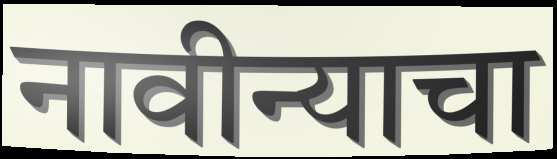
नावीन्याचा